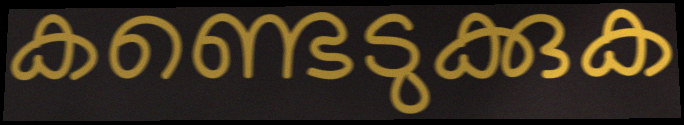
കണ്ടെടുക്കുക